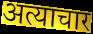
अत्याचार